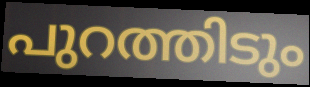
പുറത്തിടും